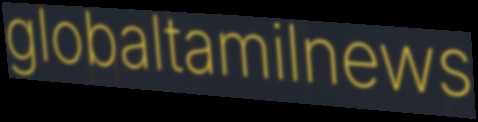
globaltamilnews